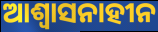
ଆଶ୍ୱାସନାହୀନ